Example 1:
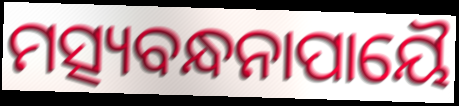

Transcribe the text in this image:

ମତ୍ସ୍ୟବନ୍ଧନାପାୟୈ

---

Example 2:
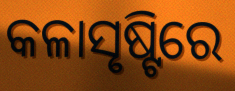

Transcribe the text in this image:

କଳାସୃଷ୍ଟିରେ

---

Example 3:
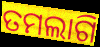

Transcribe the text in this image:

ତମଲାଗି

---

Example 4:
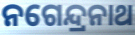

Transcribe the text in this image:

ନଗେନ୍ଦ୍ରନାଥ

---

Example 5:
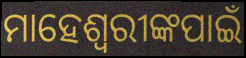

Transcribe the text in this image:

ମାହେଶ୍ୱରୀଙ୍କପାଇଁ